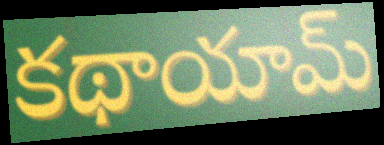
కథాయామ్